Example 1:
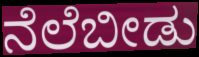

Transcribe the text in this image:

ನೆಲೆಬೀಡು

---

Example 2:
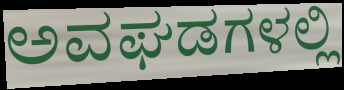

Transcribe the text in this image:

ಅವಘಡಗಳಲ್ಲಿ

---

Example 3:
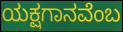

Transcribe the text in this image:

ಯಕ್ಷಗಾನವೆಂಬ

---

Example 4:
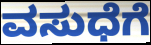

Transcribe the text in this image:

ವಸುಧೆಗೆ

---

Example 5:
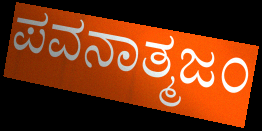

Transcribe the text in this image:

ಪವನಾತ್ಮಜಂ